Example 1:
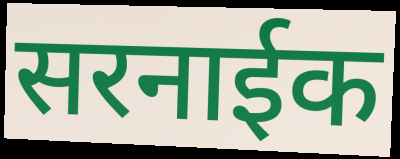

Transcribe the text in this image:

सरनाईक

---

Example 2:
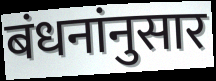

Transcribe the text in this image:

बंधनांनुसार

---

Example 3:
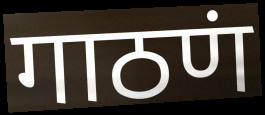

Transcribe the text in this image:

गाठणं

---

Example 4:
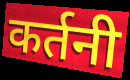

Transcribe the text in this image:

कर्तनी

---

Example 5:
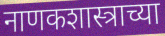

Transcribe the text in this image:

नाणकशास्त्राच्या